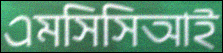
এমসিসিআই